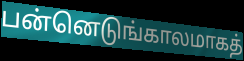
பன்னெடுங்காலமாகத்